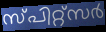
സ്പിറ്റ്സർ